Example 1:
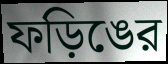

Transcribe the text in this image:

ফড়িঙের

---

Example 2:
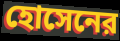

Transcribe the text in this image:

হোসেনের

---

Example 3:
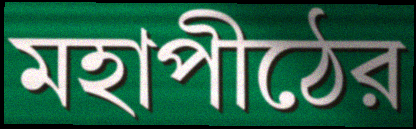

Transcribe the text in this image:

মহাপীঠের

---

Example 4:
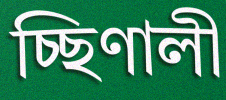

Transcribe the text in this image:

চ্ছিণালী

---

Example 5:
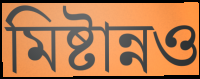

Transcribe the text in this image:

মিষ্টান্নও